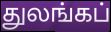
துலங்கப்